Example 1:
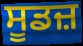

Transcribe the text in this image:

ਸੂਡਜ਼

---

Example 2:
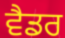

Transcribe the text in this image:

ਵੈਡਰ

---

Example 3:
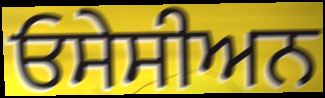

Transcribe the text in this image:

ਓਸੇਸੀਅਨ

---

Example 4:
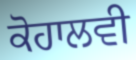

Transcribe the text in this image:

ਕੋਹਾਲਵੀ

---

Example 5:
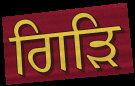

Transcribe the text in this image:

ਗਿੜਿ